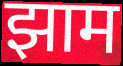
झाम